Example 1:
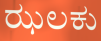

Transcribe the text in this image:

ಝಲಕು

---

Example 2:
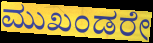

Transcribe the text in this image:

ಮುಖಂಡರೇ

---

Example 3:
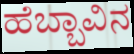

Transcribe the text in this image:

ಹೆಬ್ಬಾವಿನ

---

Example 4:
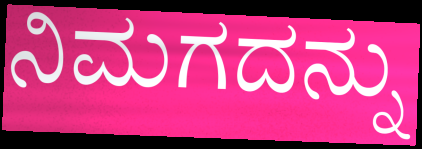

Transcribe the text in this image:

ನಿಮಗದನ್ನು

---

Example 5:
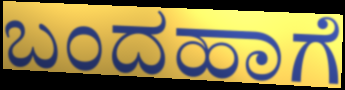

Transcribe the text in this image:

ಬಂದಹಾಗೆ